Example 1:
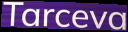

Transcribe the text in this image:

Tarceva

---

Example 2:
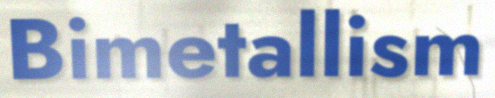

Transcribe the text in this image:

Bimetallism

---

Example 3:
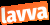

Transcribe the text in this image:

lavva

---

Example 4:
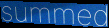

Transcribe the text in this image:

summed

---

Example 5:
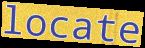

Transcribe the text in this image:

locate